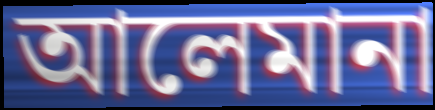
আলেমানা